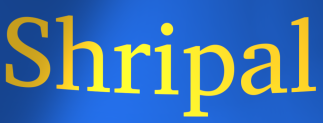
Shripal